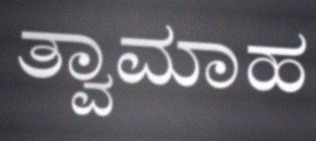
ತ್ವಾಮಾಹ